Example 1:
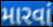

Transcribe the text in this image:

મારવાં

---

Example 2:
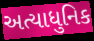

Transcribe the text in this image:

અત્યાધુનિક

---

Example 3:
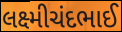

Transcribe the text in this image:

લક્ષ્મીચંદભાઈ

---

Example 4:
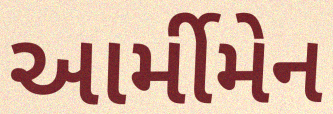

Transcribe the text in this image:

આર્મીમેન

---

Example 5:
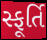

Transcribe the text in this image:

સ્ફૂર્તિ